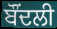
ਬੌਂਦਲੀ